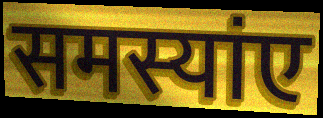
समस्यांए